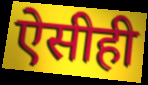
ऐसीही